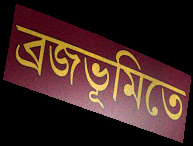
ব্রজভূমিতে